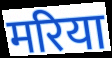
मरिया